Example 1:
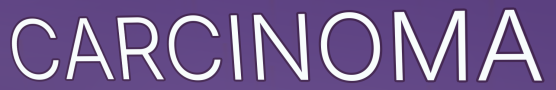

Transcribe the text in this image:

CARCINOMA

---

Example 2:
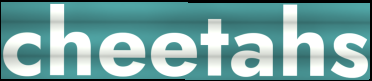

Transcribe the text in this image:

cheetahs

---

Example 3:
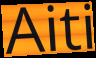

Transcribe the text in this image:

Aiti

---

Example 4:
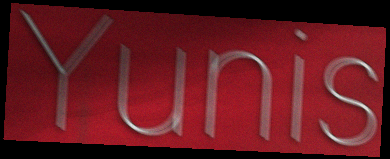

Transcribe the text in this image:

Yunis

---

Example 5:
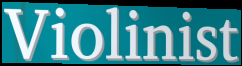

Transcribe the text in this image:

Violinist